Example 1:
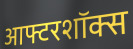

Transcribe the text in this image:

आफ्टरशॉक्स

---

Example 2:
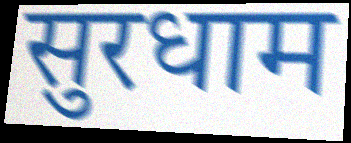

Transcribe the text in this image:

सुरधाम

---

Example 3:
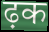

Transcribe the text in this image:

ढ़क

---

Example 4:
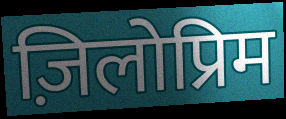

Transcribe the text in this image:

ज़िलोप्रिम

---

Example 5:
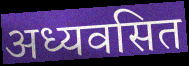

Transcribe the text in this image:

अध्यवसित